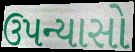
ઉપન્યાસો